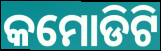
କମୋଡିଟି